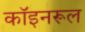
कॉइनरूल